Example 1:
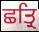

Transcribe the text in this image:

ਛਤ੍ਰਿ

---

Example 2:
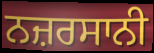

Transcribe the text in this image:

ਨਜ਼ਰਸਾਨੀ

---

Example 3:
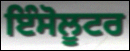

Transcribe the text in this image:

ਇੰਸੋਲੂਟਰ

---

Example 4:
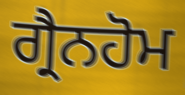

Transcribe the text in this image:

ਗ੍ਰੈਨਹੋਮ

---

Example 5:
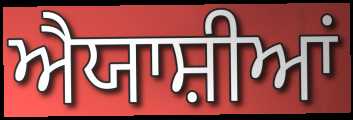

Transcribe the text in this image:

ਐਯਾਸ਼ੀਆਂ